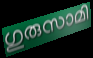
ഗുരുസാമി